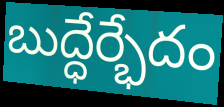
బుద్ధేర్భేదం